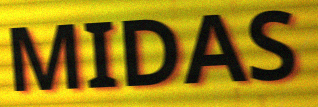
MIDAS